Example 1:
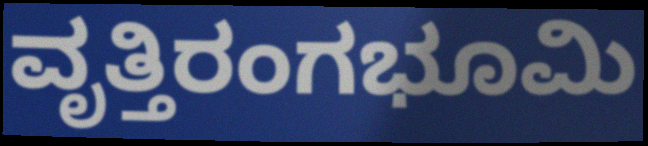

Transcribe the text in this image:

ವೃತ್ತಿರಂಗಭೂಮಿ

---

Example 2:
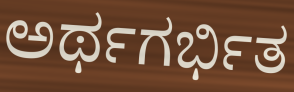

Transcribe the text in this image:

ಅರ್ಥಗರ್ಭಿತ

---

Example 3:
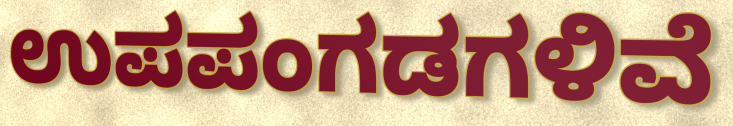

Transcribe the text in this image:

ಉಪಪಂಗಡಗಳಿವೆ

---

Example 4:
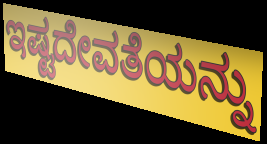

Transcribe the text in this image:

ಇಷ್ಟದೇವತೆಯನ್ನು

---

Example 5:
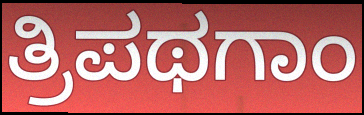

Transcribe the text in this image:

ತ್ರಿಪಥಗಾಂ